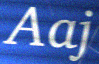
Aaj